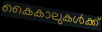
കൈകാലുകൾക്ക്